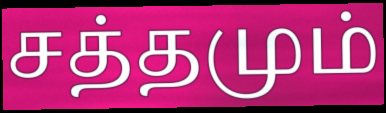
சத்தமும்